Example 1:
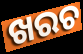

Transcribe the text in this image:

ଖରଚ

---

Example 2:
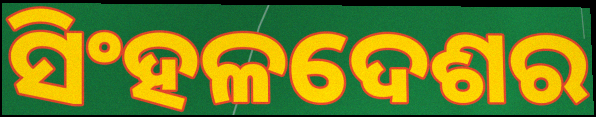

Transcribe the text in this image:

ସିଂହଳଦେଶର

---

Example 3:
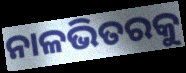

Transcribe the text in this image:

ନାଳଭିତରକୁ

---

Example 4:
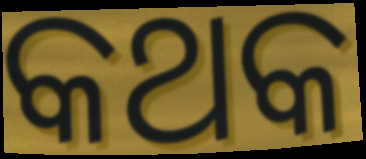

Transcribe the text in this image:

କଥକ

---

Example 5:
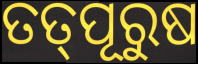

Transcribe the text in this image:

ତତ୍‌ପୂରୁଷ